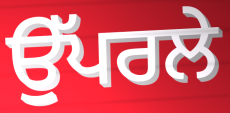
ਉੱਪਰਲੇ